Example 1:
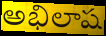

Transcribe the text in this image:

అభిలాష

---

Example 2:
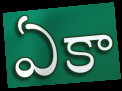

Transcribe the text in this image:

ఏకా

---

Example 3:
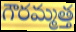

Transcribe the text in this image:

గౌరమ్మత్త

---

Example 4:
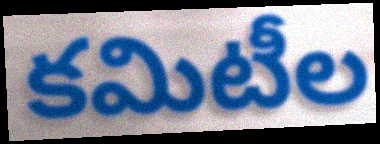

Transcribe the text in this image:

కమిటీల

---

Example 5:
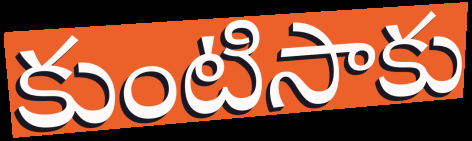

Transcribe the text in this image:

కుంటిసాకు